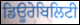
ਡਿਊਰੇਬਿਲਿਟੀ